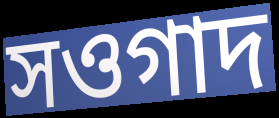
সওগাদ